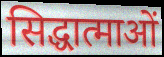
सिद्धात्माओं